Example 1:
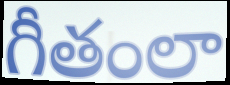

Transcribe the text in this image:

గీతంలా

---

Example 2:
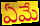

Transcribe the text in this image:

ఏమే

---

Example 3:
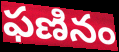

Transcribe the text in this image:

ఫణినం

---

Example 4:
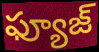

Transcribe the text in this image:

ఫ్యూజ్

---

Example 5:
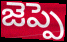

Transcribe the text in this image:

జెప్పె